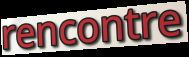
rencontre